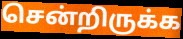
சென்றிருக்க